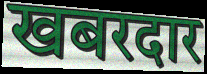
खबरदार